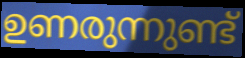
ഉണരുന്നുണ്ട്